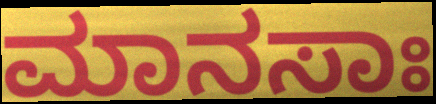
ಮಾನಸಾಃ